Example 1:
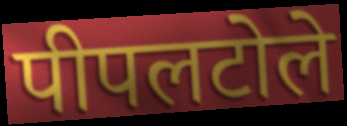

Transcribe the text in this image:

पीपलटोले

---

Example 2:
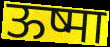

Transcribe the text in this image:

ऊष्‍मा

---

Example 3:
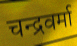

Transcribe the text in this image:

चन्द्रवर्मा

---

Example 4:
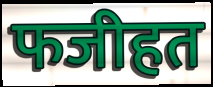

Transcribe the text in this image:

फजीहत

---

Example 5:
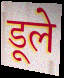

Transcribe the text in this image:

डूले